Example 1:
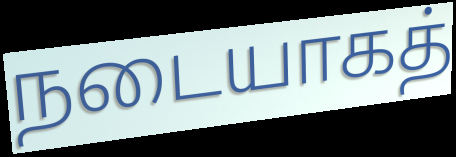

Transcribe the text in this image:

நடையாகத்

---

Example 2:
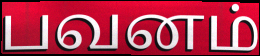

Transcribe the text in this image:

பவனம்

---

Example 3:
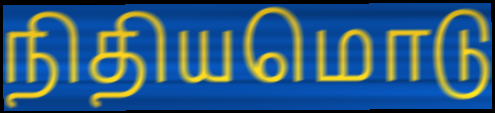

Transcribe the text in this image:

நிதியமொடு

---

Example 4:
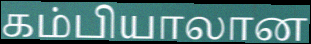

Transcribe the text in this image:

கம்பியாலான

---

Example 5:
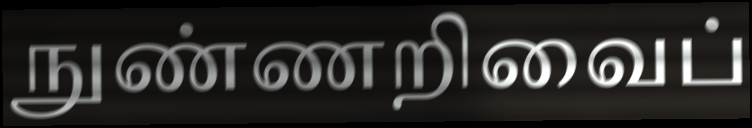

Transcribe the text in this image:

நுண்ணறிவைப்